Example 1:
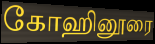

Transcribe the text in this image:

கோஹினூரை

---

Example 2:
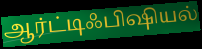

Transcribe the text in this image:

ஆர்ட்டிஃபிஷியல்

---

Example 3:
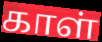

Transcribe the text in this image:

காள்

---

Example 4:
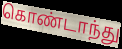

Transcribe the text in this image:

கொண்டாந்து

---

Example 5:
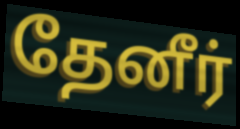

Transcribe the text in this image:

தேனீர்